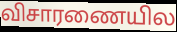
விசாரணையில